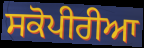
ਸਕੋਪੀਰੀਆ